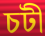
চটী